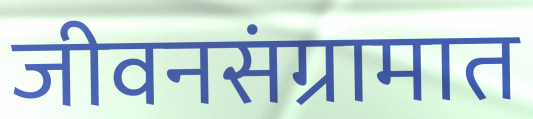
जीवनसंग्रामात